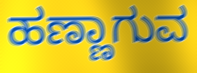
ಹಣ್ಣಾಗುವ